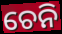
ଚେନି